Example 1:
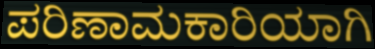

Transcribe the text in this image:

ಪರಿಣಾಮಕಾರಿಯಾಗಿ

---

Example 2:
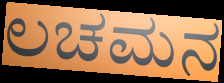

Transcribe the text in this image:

ಲಚಮನ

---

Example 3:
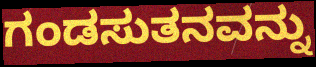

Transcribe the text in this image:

ಗಂಡಸುತನವನ್ನು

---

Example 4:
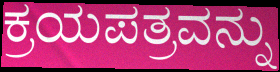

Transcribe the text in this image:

ಕ್ರಯಪತ್ರವನ್ನು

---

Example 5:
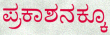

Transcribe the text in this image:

ಪ್ರಕಾಶನಕ್ಕೂ